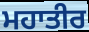
ਮਹਾਤੀਰ